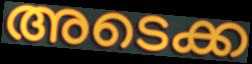
അടെക്ക